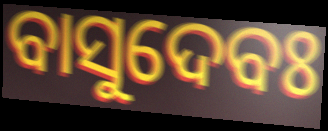
ବାସୁଦେବଃ